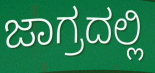
ಜಾಗ್ರದಲ್ಲಿ